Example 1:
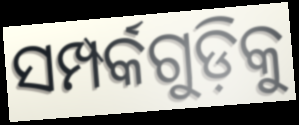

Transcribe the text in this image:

ସମ୍ପର୍କଗୁଡ଼ିକୁ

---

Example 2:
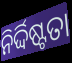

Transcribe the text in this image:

ନିର୍ଦ୍ଦିଷ୍ଟତା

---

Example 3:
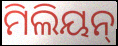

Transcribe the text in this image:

ମିଲିୟନ୍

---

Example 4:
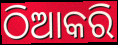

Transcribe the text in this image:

ଠିଆକରି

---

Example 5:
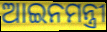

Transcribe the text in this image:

ଆଇନମନ୍ତ୍ରୀ